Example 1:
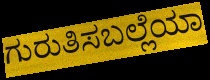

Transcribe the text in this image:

ಗುರುತಿಸಬಲ್ಲೆಯಾ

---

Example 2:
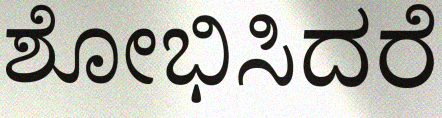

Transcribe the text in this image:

ಶೋಭಿಸಿದರೆ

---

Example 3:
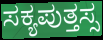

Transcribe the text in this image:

ಸಕ್ಯಪುತ್ತಸ್ಸ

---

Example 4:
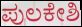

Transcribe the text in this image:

ಪುಲಕೇಶಿ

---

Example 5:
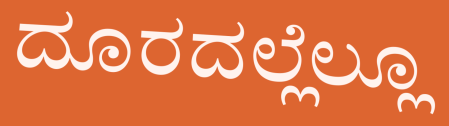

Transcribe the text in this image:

ದೂರದಲ್ಲೆಲ್ಲೂ